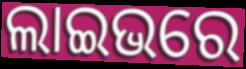
ଲାଇଭରେ